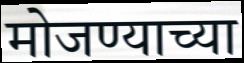
मोजण्याच्या